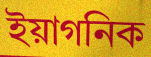
ইয়াগনিক